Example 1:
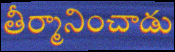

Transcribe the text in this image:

తీర్మానించాడు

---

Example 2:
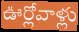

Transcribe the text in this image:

ఊర్లోవాళ్లు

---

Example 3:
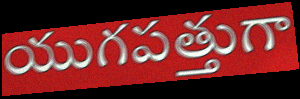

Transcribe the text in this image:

యుగపత్తుగా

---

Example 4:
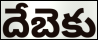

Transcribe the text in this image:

దేబెకు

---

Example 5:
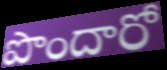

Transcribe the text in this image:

పొందారో